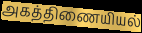
அகத்திணையியல்